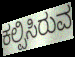
ಕಲ್ಪಿಸಿರುವ